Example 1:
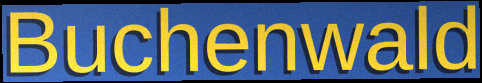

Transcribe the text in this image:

Buchenwald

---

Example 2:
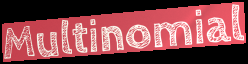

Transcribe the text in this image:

Multinomial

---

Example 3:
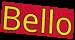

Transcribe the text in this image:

Bello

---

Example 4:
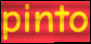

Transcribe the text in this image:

pinto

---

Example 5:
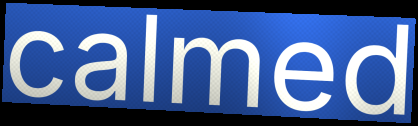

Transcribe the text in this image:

calmed